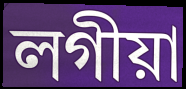
লগীয়া